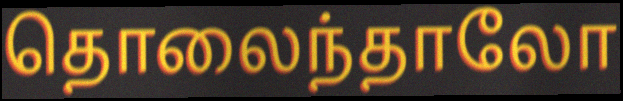
தொலைந்தாலோ